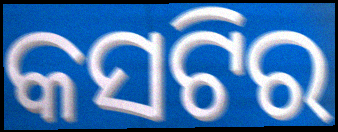
କସଟିର